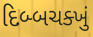
દિબ્બચક્ખું